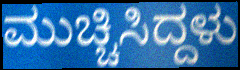
ಮುಚ್ಚಿಸಿದ್ದಳು